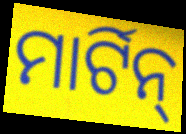
ମାର୍ଟିନ୍